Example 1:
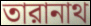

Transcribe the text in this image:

তারানাথ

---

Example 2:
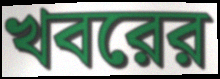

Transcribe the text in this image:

খবরের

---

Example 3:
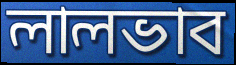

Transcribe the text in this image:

লালভাব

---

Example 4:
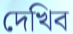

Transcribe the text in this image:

দেখিব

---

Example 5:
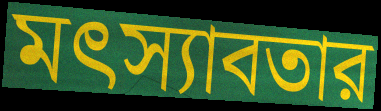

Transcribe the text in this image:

মৎস্যাবতার